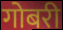
गोबरी